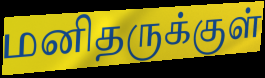
மனிதருக்குள்